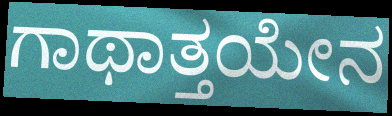
ಗಾಥಾತ್ತಯೇನ